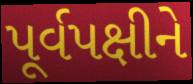
પૂર્વપક્ષીને